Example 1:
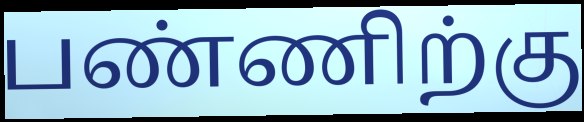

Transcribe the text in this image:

பண்ணிற்கு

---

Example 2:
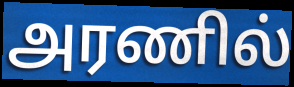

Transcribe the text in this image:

அரணில்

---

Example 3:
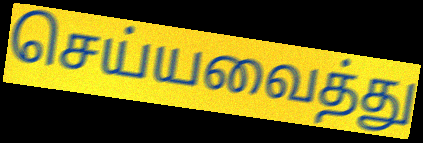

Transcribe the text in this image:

செய்யவைத்து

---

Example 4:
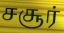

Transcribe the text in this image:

சசூர்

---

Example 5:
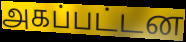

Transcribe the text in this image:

அகப்பட்டன